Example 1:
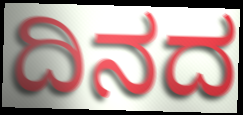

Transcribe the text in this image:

ದಿನದ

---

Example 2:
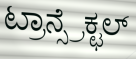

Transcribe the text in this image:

ಟ್ರಾನ್ಸ್ರೆಕ್ಟಲ್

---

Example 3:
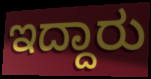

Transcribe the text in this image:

ಇದ್ದಾರು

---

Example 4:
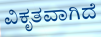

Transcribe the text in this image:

ವಿಕೃತವಾಗಿದೆ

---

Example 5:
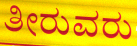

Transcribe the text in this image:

ತೀರುವರು